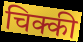
चिक्की